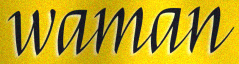
waman